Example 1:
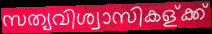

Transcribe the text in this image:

സത്യവിശ്വാസികള്ക്ക്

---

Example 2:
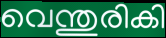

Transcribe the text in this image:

വെന്തുരികി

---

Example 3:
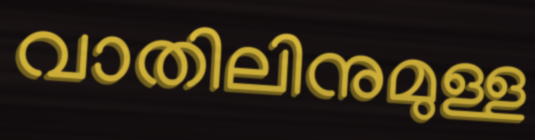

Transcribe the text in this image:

വാതിലിനുമുള്ള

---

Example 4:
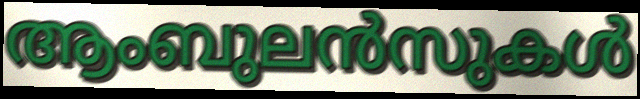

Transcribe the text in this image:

ആംബുലൻസുകൾ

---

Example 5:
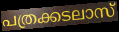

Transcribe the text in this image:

പത്രക്കടലാസ്